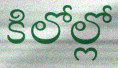
కిలోల్లో